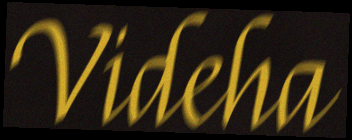
Videha